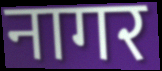
नागर